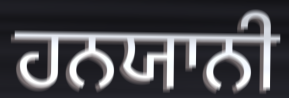
ਹਨਯਾਨੀ